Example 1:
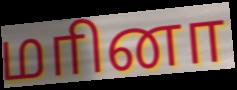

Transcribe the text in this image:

மரினா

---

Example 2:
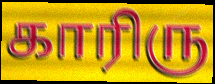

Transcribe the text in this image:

காரிரு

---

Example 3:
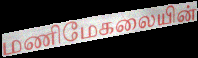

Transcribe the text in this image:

மணிமேகலையின்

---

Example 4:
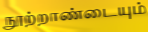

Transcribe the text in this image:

நூற்றாண்டையும்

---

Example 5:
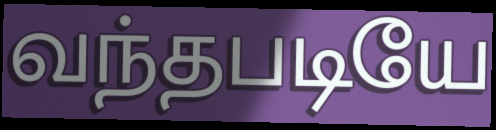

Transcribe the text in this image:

வந்தபடியே